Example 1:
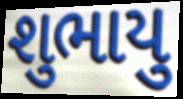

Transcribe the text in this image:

શુભાયુ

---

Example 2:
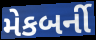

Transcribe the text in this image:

મેકબર્ની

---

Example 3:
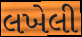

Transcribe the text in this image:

લખેલી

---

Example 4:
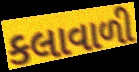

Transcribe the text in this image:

કલાવાળી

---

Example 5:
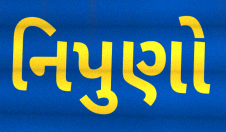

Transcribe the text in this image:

નિપુણો